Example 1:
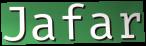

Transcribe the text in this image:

Jafar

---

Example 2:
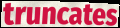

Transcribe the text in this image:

truncates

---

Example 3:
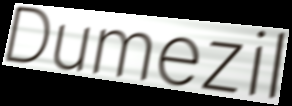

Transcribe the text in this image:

Dumezil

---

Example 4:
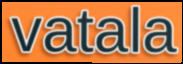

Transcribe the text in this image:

vatala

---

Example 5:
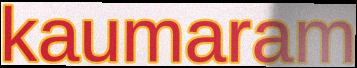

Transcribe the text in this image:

kaumaram